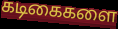
கடிகைகளை